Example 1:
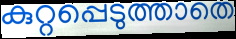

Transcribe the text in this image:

കുറ്റപ്പെടുത്താതെ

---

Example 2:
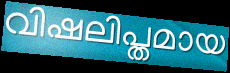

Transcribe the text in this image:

വിഷലിപ്തമായ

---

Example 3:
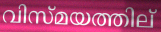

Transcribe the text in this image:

വിസ്മയത്തില്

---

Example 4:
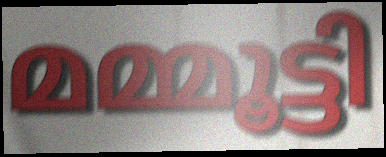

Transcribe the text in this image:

മമ്മൂട്ടി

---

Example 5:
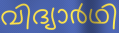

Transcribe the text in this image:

വിദ്യാർഥി